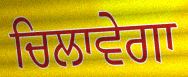
ਚਿਲਾਵੇਗਾ